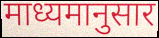
माध्यमानुसार